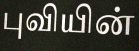
புவியின்